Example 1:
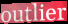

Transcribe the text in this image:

outlier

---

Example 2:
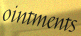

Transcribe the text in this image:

ointments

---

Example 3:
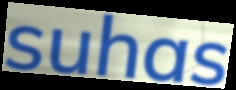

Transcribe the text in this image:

suhas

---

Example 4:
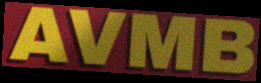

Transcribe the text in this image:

AVMB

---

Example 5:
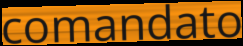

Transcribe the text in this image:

comandato